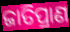
ଜାତିପ୍ରାଣ